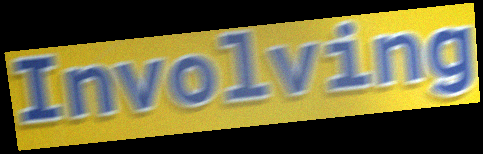
Involving